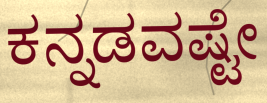
ಕನ್ನಡವಷ್ಟೇ